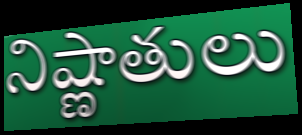
నిష్ణాతులు